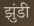
झुंडी